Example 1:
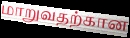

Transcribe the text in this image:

மாறுவதற்கான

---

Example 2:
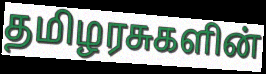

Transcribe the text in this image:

தமிழரசுகளின்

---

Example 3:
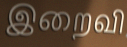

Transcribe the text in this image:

இறைவி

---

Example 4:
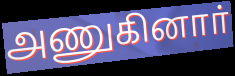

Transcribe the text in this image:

அணுகினார்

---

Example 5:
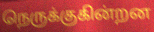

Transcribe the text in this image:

நெருக்குகின்றன